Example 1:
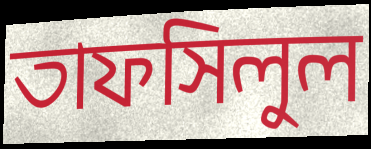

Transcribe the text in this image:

তাফসিলুল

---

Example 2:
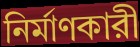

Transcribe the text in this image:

নির্মাণকারী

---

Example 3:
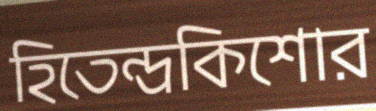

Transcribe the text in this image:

হিতেন্দ্রকিশোর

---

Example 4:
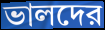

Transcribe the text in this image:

ভালদের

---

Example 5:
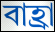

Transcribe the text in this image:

বাহ্রা